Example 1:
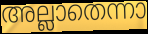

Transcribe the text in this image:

അല്ലാതെന്നാ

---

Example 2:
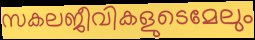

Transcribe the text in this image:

സകലജീവികളുടെമേലും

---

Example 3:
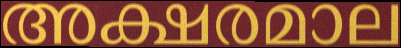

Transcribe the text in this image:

അക്ഷരമാല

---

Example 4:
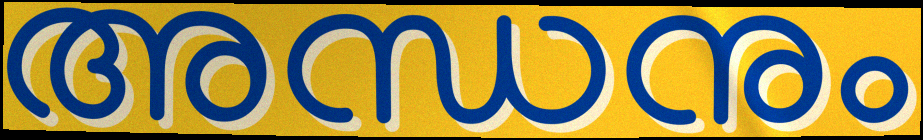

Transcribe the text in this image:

അന്ധനും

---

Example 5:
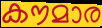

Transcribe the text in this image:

കൗമാര